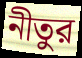
নীতুর